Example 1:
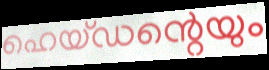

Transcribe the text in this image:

ഹെയ്ഡന്റെയും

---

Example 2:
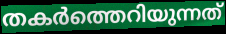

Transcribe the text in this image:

തകർത്തെറിയുന്നത്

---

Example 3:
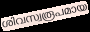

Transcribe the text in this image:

ശിവസ്വരൂപമായ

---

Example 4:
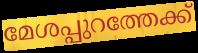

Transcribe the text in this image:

മേശപ്പുറത്തേക്ക്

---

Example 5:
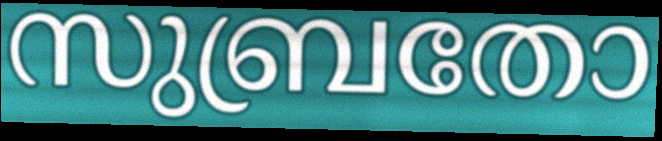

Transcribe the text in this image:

സുബ്രതോ